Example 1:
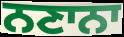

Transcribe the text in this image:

ਨਣਾਨਾ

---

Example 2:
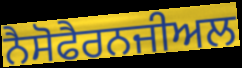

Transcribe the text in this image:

ਨੈਸੋਫੈਰਨਜੀਅਲ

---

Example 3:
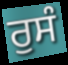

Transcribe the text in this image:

ਰੁਸੰ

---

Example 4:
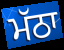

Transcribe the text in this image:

ਮੱਠਾ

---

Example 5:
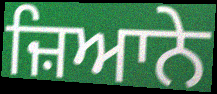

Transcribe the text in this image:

ਜ਼ਿਆਨੇ